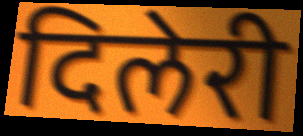
दिलेरी